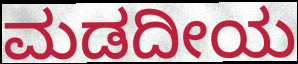
ಮಡದೀಯ